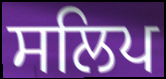
ਸਲਿਪ